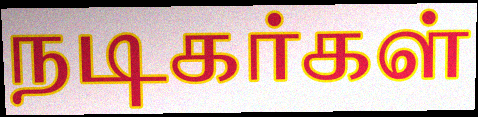
நடிகர்கள்